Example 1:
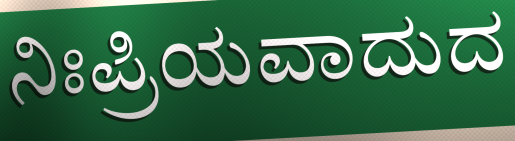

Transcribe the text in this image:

ನಿಃಪ್ರಿಯವಾದುದ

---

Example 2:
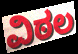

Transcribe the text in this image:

ವಿಠಲ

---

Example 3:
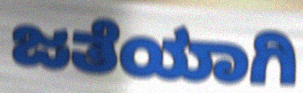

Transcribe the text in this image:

ಜತೆಯಾಗಿ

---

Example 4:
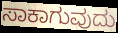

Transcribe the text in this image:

ಸಾಕಾಗುವುದು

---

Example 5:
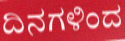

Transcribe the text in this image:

ದಿನಗಳಿಂದ